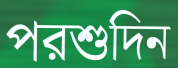
পরশুদিন